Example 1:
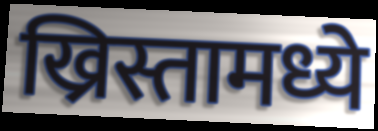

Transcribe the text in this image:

ख्रिस्तामध्ये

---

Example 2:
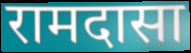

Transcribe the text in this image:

रामदासा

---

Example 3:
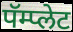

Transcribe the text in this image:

पॅम्प्लेट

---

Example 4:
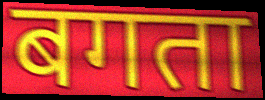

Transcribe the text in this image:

बगता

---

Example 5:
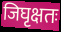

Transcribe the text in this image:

जिघृक्षतः